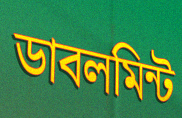
ডাবলমিন্ট